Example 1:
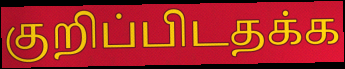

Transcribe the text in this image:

குறிப்பிடதக்க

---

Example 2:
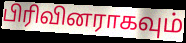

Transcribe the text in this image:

பிரிவினராகவும்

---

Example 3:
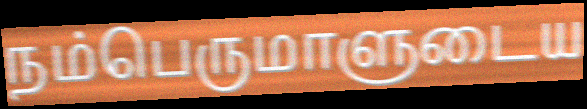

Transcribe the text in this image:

நம்பெருமாளுடைய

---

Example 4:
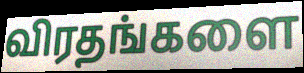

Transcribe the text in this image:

விரதங்களை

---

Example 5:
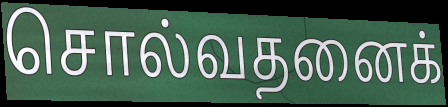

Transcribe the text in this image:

சொல்வதனைக்